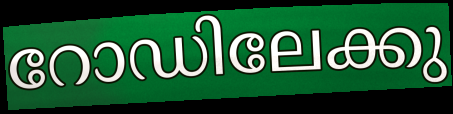
റോഡിലേക്കു